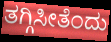
ತಗ್ಗಿಸೀತೆಂದು